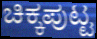
ಚಿಕ್ಕಪುಟ್ಟ